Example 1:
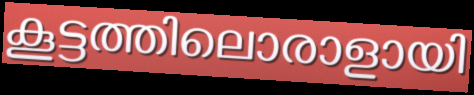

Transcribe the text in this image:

കൂട്ടത്തിലൊരാളായി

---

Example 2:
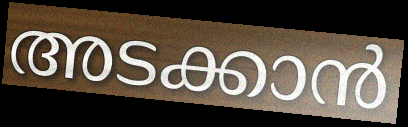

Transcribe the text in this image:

അടക്കാൻ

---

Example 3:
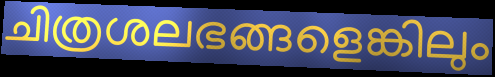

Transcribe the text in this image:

ചിത്രശലഭങ്ങളെങ്കിലും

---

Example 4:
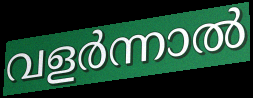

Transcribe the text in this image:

വളർന്നാൽ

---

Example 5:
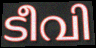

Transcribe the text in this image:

ടീവി